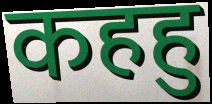
कहहु